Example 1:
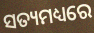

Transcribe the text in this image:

ସତ୍ୟମଧ୍ୟରେ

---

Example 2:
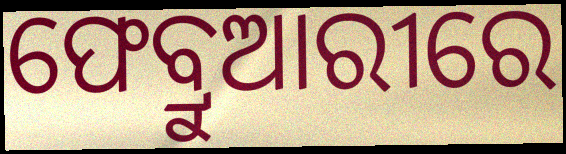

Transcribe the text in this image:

ଫେବ୍ରୁଆରୀରେ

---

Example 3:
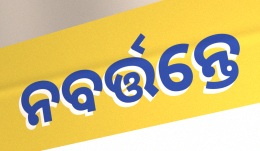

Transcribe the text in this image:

ନବର୍ତ୍ତନ୍ତେ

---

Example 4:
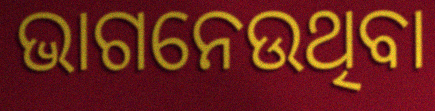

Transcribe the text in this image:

ଭାଗନେଉଥିବା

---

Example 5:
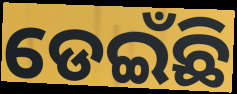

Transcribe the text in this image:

ଡେଇଁଛି